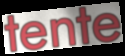
tente